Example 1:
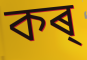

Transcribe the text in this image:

কৰ্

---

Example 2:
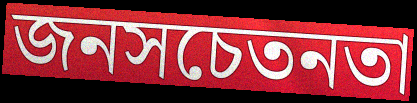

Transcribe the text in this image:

জনসচেতনতা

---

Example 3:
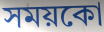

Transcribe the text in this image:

সময়কো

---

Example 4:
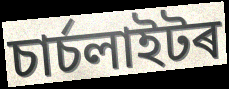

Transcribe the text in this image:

চাৰ্চলাইটৰ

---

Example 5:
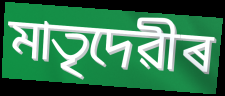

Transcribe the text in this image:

মাতৃদেৱীৰ